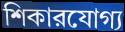
শিকারযোগ্য